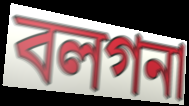
বলগনা